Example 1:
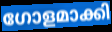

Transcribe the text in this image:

ഗോളമാക്കി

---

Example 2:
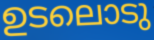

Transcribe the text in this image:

ഉടലൊടു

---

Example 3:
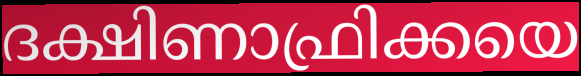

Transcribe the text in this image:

ദക്ഷിണാഫ്രിക്കയെ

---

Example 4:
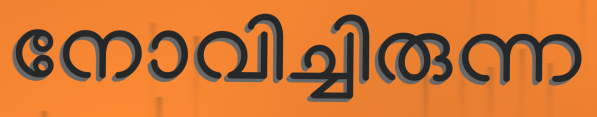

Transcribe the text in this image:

നോവിച്ചിരുന്ന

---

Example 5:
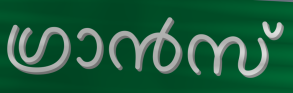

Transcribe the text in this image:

ഗ്രാൻസ്